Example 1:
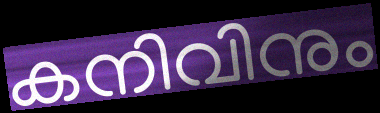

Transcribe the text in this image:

കനിവിനും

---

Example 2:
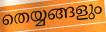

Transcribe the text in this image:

തെയ്യങ്ങളും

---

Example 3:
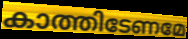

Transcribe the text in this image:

കാത്തിടേണമേ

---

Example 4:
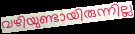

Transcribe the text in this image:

വഴിയുണ്ടായിരുന്നില്ല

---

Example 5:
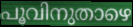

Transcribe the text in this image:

പൂവിനുതാഴെ